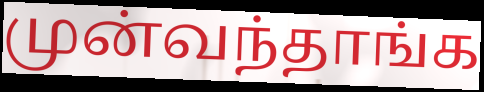
முன்வந்தாங்க